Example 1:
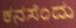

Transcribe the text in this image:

ಕನಸೆಂದು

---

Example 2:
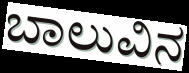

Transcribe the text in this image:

ಬಾಲುವಿನ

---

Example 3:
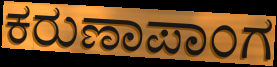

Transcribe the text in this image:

ಕರುಣಾಪಾಂಗ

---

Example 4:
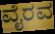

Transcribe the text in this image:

ವೈರವ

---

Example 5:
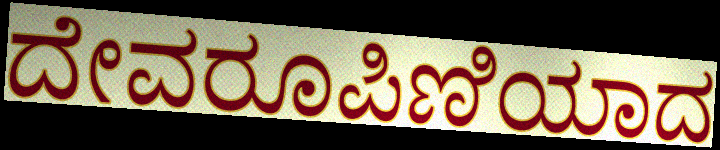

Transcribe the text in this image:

ದೇವರೂಪಿಣಿಯಾದ